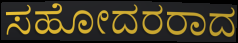
ಸಹೋದರರಾದ